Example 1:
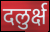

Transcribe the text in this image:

दलुर्क्ष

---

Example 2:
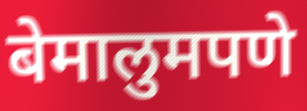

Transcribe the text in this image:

बेमालुमपणे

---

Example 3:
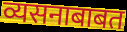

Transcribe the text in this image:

व्यसनाबाबत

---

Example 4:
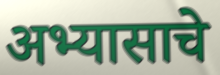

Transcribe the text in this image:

अभ्यासाचे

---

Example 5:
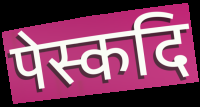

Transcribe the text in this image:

पेस्कदि